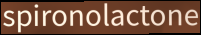
spironolactone